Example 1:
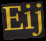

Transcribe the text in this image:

Eij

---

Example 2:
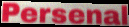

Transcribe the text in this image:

Persenal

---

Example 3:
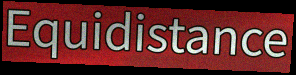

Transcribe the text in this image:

Equidistance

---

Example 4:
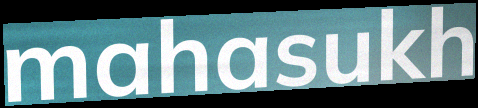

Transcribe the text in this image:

mahasukh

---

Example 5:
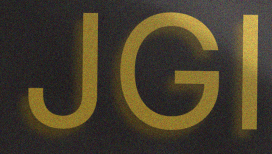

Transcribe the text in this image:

JGI